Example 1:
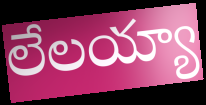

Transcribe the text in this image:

లేలయ్యా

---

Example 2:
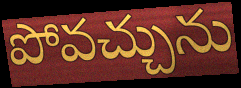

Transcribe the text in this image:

పోవచ్చును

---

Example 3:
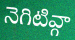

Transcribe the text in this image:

నెగిటివ్గా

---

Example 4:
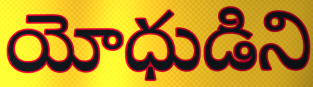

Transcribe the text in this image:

యోధుడిని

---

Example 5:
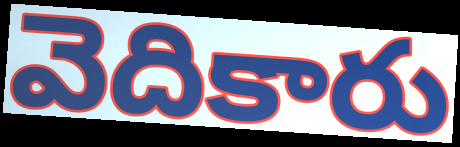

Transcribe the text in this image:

వెదికారు